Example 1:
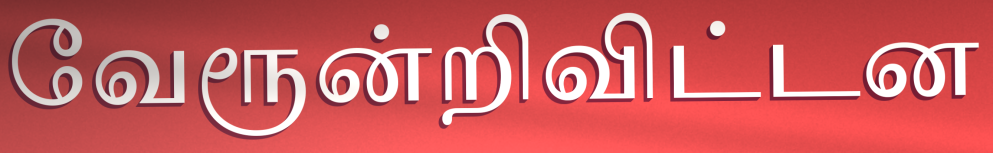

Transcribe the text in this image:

வேரூன்றிவிட்டன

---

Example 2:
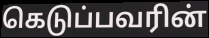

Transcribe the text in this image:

கெடுப்பவரின்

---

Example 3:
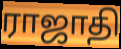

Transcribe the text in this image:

ராஜாதி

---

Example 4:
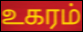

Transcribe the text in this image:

உகரம்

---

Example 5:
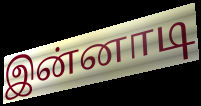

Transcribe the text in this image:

இன்னாடி